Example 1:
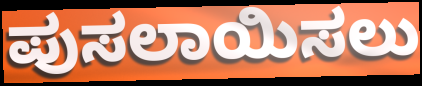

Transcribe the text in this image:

ಪುಸಲಾಯಿಸಲು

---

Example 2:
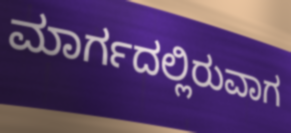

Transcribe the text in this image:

ಮಾರ್ಗದಲ್ಲಿರುವಾಗ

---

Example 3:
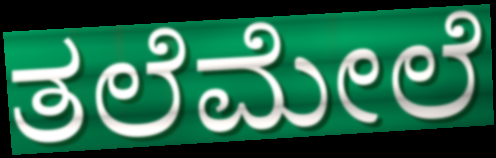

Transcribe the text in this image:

ತಲೆಮೇಲೆ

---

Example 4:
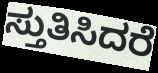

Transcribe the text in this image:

ಸ್ತುತಿಸಿದರೆ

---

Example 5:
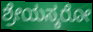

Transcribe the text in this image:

ಶ್ರೇಯಸ್ಕರೋ